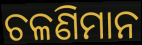
ଚଳଣିମାନ